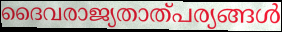
ദൈവരാജ്യതാത്പര്യങ്ങൾ